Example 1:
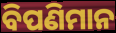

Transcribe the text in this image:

ବିପଣିମାନ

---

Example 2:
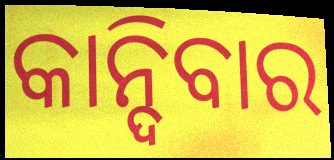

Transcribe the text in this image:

କାନ୍ଦିବାର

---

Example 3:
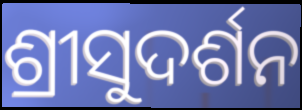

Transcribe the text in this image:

ଶ୍ରୀସୁଦର୍ଶନ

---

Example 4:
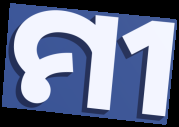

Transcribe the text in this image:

ମୀ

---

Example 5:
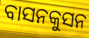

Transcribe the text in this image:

ବାସନକୁସନ